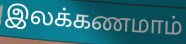
இலக்கணமாம்